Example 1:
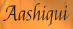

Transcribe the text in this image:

Aashiqui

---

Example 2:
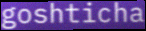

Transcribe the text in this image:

goshticha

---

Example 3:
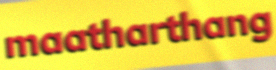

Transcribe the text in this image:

maatharthang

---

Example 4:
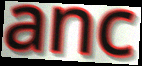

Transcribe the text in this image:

anc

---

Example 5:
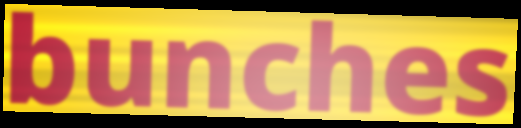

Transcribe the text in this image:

bunches